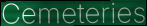
Cemeteries